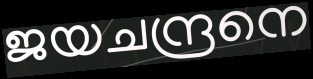
ജയചന്ദ്രനെ